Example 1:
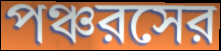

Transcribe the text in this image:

পঞ্চরসের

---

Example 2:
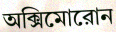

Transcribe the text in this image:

অক্সিমোরোন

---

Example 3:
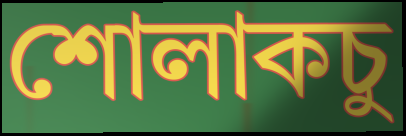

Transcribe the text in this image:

শোলাকচু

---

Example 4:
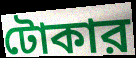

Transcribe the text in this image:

টোকার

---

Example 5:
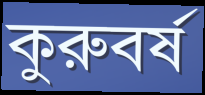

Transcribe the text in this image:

কুরুবর্ষ